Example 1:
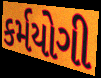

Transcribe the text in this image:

કર્મયોગી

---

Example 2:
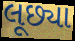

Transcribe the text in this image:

લૂછ્યા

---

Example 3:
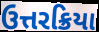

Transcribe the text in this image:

ઉત્તરક્રિયા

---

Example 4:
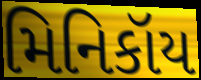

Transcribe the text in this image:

મિનિકૉય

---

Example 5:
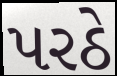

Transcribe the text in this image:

પરઠે